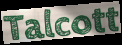
Talcott